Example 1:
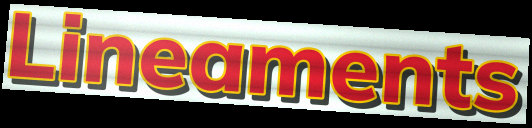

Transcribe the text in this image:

Lineaments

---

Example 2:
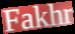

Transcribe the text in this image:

Fakhr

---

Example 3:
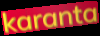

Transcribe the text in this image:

karanta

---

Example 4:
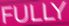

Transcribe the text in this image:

FULLY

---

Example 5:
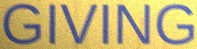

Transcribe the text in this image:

GIVING